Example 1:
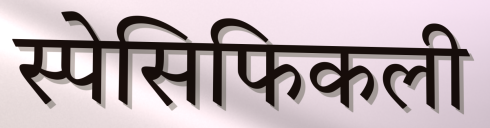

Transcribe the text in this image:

स्पेसिफिकली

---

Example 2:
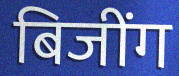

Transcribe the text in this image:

बिजींग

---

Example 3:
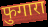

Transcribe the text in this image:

फुगारा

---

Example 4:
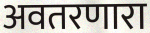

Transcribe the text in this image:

अवतरणारा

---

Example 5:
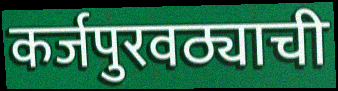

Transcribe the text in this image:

कर्जपुरवठ्याची